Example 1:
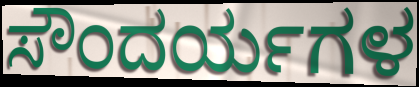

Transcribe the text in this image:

ಸೌಂದರ್ಯಗಳ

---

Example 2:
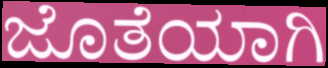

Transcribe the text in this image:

ಜೊತೆಯಾಗಿ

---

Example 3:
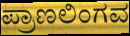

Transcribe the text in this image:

ಪ್ರಾಣಲಿಂಗವ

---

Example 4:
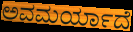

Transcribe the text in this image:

ಅವಮರ್ಯಾದೆ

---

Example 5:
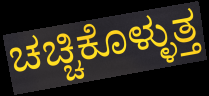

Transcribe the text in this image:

ಚಚ್ಚಿಕೊಳ್ಳುತ್ತ